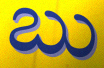
బు